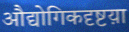
औद्योगिकदृष्टय़ा